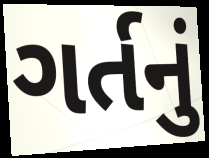
ગર્તનું